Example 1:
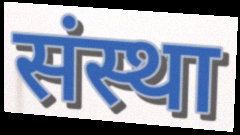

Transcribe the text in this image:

संस्था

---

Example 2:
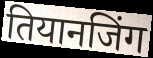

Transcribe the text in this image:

तियानजिंग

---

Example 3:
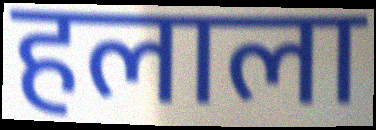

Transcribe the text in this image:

हलाला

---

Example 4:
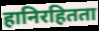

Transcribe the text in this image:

हानिरहितता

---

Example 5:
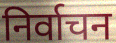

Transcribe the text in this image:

निर्वाचन